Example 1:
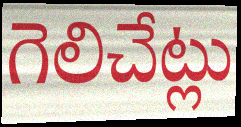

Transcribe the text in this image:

గెలిచేట్లు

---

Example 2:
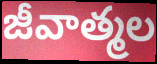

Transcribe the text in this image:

జీవాత్మల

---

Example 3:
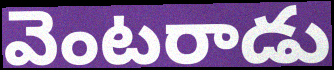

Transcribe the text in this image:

వెంటరాడు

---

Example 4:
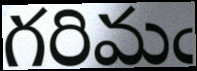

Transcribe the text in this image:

గరిమఁ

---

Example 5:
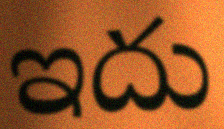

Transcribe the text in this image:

ఇదు